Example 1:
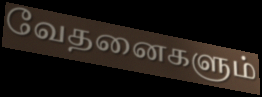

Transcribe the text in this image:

வேதனைகளும்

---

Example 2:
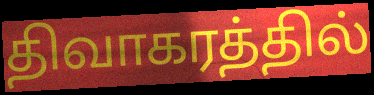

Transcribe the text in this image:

திவாகரத்தில்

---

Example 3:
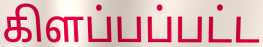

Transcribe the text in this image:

கிளப்பப்பட்ட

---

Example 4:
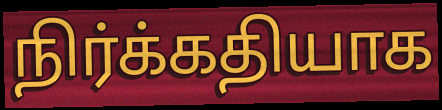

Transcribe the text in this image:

நிர்க்கதியாக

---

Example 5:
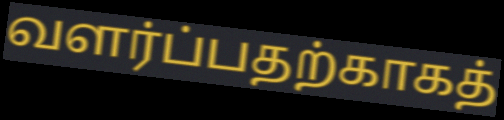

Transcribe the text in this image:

வளர்ப்பதற்காகத்